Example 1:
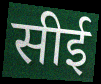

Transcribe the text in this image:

सीई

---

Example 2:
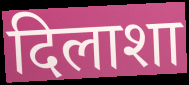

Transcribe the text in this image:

दिलाशा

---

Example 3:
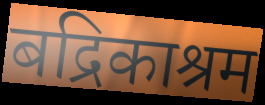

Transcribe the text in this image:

बद्रिकाश्रम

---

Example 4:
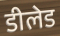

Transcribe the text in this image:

डीलेड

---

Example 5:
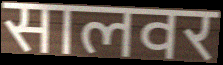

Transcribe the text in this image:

सालवर